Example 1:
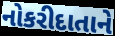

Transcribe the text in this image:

નોકરીદાતાને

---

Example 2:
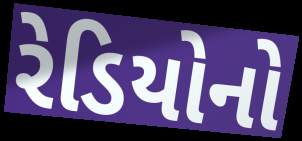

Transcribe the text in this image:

રેડિયોનો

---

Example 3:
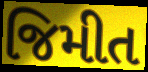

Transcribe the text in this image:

જિમીત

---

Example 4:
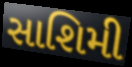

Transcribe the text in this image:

સાશિમી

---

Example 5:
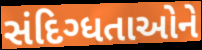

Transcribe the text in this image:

સંદિગ્ધતાઓને